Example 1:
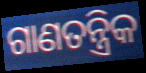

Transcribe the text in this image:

ଗାଣତନ୍ତ୍ରିକ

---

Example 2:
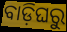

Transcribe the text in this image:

ବାଡ଼ିଘରୁ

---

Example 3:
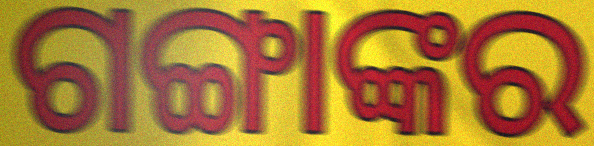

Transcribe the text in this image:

ଗଙ୍ଗାଙ୍କର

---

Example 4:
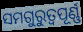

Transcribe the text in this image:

ସମଗୁରୁତ୍ଵପୂର୍ଣ୍ଣ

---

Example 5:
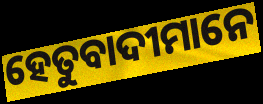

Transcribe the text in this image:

ହେତୁବାଦୀମାନେ